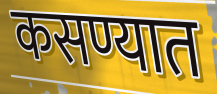
कसण्यात